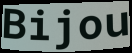
Bijou